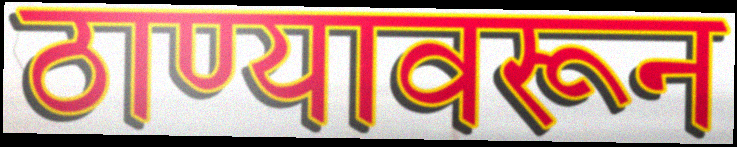
ठाण्यावरून